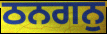
ਠਨਗਨੁ